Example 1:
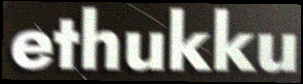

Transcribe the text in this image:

ethukku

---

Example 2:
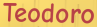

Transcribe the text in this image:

Teodoro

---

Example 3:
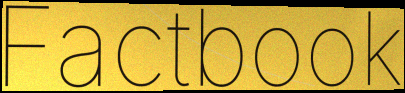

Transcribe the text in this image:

Factbook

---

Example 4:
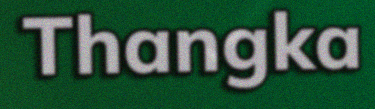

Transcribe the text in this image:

Thangka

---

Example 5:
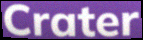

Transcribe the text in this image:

Crater